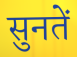
सुनतें